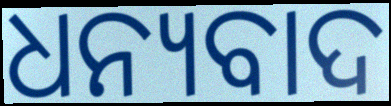
ଧନ୍ୟବାଦ